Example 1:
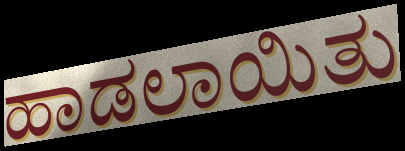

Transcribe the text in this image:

ಹಾಡಲಾಯಿತು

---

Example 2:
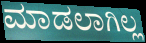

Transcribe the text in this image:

ಮಾಡಲಾಗಿಲ್ಲ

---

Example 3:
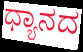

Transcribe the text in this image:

ಧ್ಯಾನದ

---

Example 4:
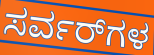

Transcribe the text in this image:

ಸರ್ವರ್‌ಗಳ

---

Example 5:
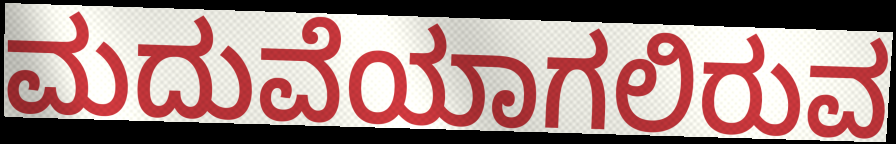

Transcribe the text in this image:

ಮದುವೆಯಾಗಲಿರುವ